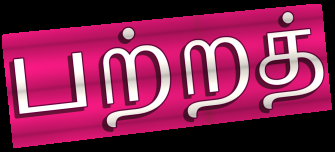
பற்றத்